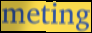
meting